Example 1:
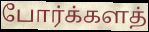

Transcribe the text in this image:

போர்க்களத்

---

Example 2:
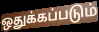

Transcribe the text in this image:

ஒதுக்கப்படும்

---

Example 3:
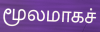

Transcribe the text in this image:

மூலமாகச்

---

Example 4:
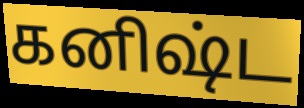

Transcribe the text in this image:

கனிஷ்ட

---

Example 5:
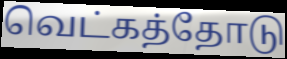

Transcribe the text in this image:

வெட்கத்தோடு